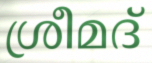
ശ്രീമദ്